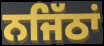
ਨਜਿੱਠਾਂ